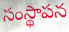
సంస్థాపన